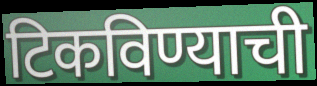
टिकविण्याची